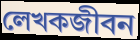
লেখকজীবন